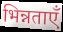
भिन्नताएँ